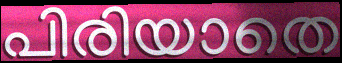
പിരിയാതെ